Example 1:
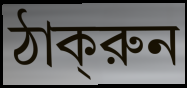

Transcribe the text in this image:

ঠাক্‌রুন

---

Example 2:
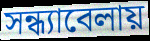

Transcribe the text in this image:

সন্ধ্যাবেলায়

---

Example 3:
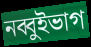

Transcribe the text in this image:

নব্বুইভাগ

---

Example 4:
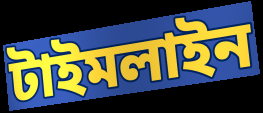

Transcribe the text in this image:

টাইমলাইন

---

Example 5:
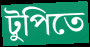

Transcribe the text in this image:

টুপিতে